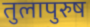
तुलापुरुष